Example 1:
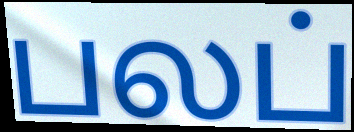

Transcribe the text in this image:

பலப்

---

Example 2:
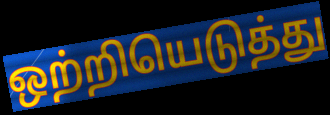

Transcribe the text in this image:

ஒற்றியெடுத்து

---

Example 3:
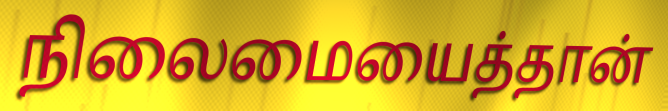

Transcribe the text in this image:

நிலைமையைத்தான்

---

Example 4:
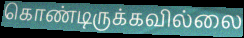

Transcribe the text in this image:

கொண்டிருக்கவில்லை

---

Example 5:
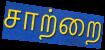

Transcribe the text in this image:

சாற்றை